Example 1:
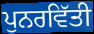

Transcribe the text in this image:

ਪੁਨਰਵਿੱਤੀ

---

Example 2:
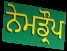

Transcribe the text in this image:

ਨੇਮਡ੍ਰੌਪ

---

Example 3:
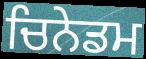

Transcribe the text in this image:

ਚਿਨੇਡਮ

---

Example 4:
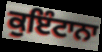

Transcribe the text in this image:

ਕੁਇੰਟਾਨਾ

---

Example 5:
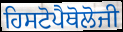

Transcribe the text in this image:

ਹਿਸਟੋਪੈਥੋਲੋਜੀ